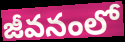
జీవనంలో